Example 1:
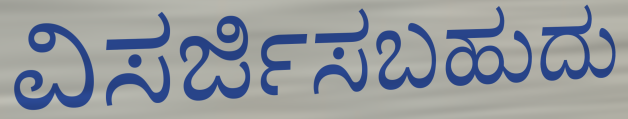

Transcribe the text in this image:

ವಿಸರ್ಜಿಸಬಹುದು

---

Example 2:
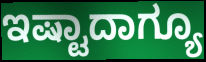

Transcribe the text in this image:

ಇಷ್ಟಾದಾಗ್ಯೂ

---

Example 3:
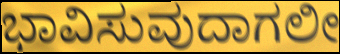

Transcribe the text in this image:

ಭಾವಿಸುವುದಾಗಲೀ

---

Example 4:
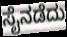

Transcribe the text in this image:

ಸೈನಡೆದು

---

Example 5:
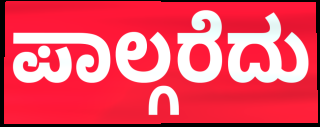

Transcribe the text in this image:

ಪಾಲ್ಗರೆದು